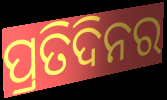
ପ୍ରତିଦିନର